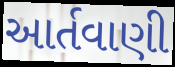
આર્તવાણી